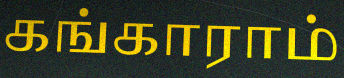
கங்காராம்